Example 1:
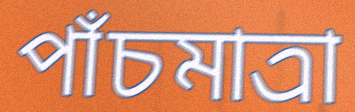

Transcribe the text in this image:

পাঁচমাত্রা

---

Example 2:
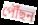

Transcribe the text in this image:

পৌঁছন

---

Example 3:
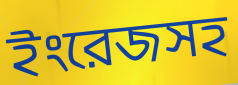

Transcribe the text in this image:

ইংরেজসহ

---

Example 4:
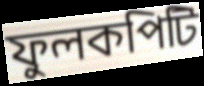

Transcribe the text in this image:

ফুলকপিটি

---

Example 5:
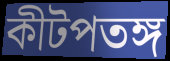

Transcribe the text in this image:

কীটপতঙ্গ